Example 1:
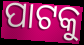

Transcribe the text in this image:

ପାଟକୁ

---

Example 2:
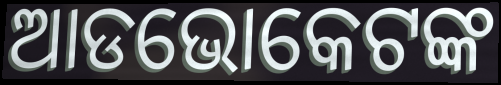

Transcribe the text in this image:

ଆଡଭୋକେଟଙ୍କ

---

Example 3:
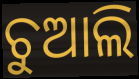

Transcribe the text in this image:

ଚୁଆଲି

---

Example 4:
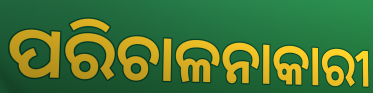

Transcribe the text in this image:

ପରିଚାଳନାକାରୀ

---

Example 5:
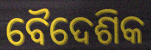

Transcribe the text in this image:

ବୈଦେଶିକ